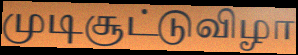
முடிசூட்டுவிழா